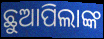
ଛୁଆପିଲାଙ୍କ